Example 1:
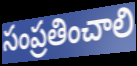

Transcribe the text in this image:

సంప్రతించాలి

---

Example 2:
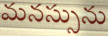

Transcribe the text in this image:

మనస్సును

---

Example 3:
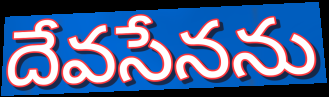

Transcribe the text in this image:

దేవసేనను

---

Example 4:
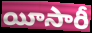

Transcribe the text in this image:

యీసారీ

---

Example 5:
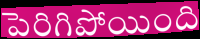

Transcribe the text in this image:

పెరిగిపోయింది